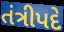
તંત્રીપદે